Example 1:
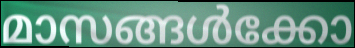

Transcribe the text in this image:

മാസങ്ങൾക്കോ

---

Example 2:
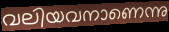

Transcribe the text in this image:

വലിയവനാണെന്നു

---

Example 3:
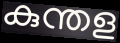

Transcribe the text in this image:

കുന്തള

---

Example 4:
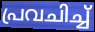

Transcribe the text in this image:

പ്രവചിച്ച്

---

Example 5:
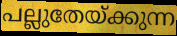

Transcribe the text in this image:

പല്ലുതേയ്ക്കുന്ന